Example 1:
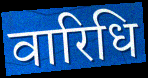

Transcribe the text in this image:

वारिधि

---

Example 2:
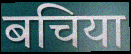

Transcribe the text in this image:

बचिया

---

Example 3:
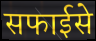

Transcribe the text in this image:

सफाईसे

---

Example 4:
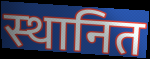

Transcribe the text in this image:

स्थानित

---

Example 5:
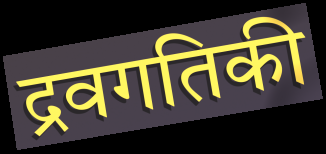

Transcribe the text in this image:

द्रवगतिकी